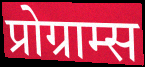
प्रोग्राम्स